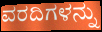
ವರದಿಗಳನ್ನು